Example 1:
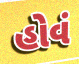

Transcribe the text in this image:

હોવં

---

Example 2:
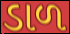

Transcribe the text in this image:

ડાળ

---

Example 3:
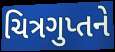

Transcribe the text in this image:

ચિત્રગુપ્તને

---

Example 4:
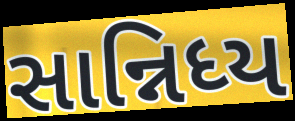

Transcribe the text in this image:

સાન્નિધ્ય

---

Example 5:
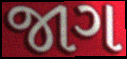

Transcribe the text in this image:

જાગ